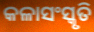
କଳାସଂସ୍କୃତି